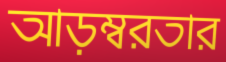
আড়ম্বরতার